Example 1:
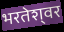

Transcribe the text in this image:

भरतेश्वर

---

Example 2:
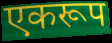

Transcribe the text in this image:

एकरूप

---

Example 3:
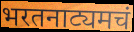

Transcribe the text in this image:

भरतनाट्यमचं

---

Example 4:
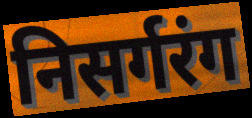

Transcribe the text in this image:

निसर्गरंग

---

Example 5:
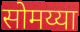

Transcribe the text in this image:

सोमय्या